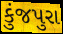
કુંજપુરા